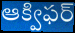
ఆక్విఫర్